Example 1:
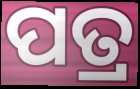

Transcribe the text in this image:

ପତ୍ର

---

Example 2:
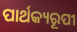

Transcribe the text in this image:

ପାର୍ଥକ୍ୟରୂପୀ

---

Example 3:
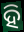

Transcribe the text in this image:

ହି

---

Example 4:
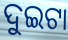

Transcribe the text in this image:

ଦୁଇଟା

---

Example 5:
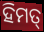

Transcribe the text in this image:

ହିମତ୍